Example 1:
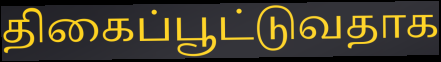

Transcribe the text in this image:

திகைப்பூட்டுவதாக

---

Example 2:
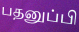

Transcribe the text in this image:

பதனுப்பி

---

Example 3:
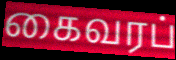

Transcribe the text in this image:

கைவரப்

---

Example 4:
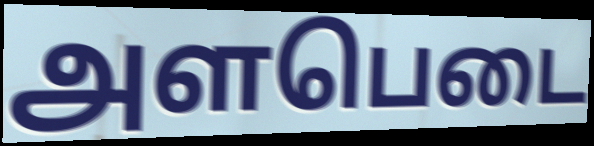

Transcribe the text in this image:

அளபெடை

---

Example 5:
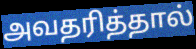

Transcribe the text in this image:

அவதரித்தால்